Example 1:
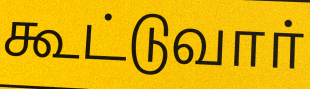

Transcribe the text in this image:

கூட்டுவார்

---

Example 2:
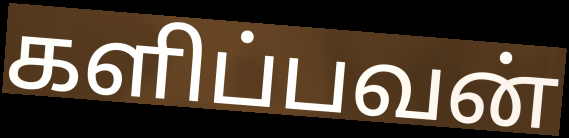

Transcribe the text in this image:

களிப்பவன்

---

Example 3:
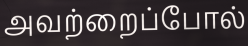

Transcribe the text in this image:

அவற்றைப்போல்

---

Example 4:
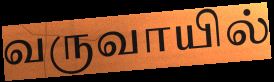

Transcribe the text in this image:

வருவாயில்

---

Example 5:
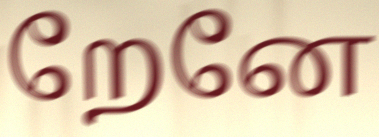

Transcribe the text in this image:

றேனே